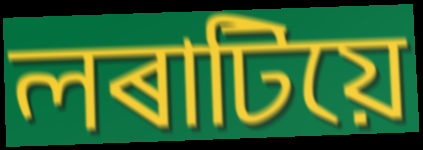
লৰাটিয়ে